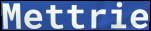
Mettrie